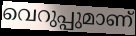
വെറുപ്പുമാണ്